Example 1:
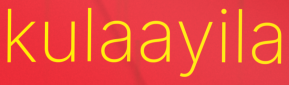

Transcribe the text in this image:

kulaayila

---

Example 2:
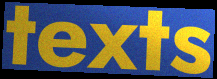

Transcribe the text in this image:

texts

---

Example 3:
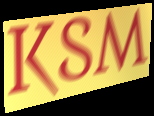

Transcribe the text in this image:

KSM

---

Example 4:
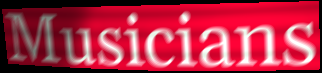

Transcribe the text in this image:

Musicians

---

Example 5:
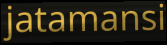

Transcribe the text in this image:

jatamansi